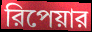
রিপেয়ার